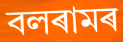
বলৰামৰ